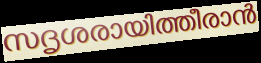
സദൃശരായിത്തീരാൻ